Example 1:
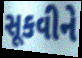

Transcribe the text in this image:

સૂકવીને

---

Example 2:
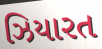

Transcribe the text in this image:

ઝિયારત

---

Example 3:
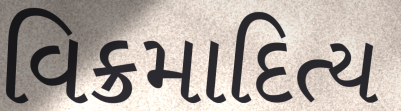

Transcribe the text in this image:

વિક્રમાદિત્‍ય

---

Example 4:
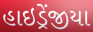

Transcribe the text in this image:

હાઇડ્રેંજીયા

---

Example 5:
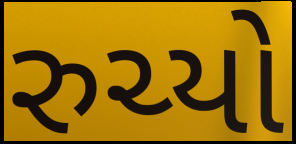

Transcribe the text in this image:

રુચ્યો